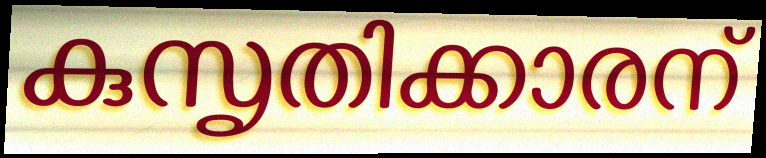
കുസൃതിക്കാരന്